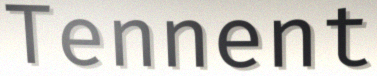
Tennent